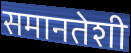
समानतेशी